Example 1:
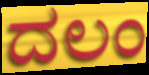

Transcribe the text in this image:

ದಲಂ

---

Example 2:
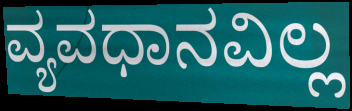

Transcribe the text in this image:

ವ್ಯವಧಾನವಿಲ್ಲ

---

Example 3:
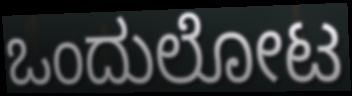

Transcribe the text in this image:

ಒಂದುಲೋಟ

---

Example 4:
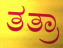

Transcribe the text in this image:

ತತ್ರಾ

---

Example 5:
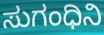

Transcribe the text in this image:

ಸುಗಂಧಿನಿ